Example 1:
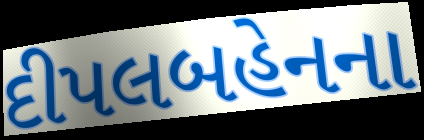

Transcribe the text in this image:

દીપલબહેનના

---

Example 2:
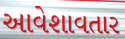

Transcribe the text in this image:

આવેશાવતાર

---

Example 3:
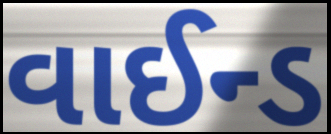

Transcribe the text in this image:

વાઈન્ડ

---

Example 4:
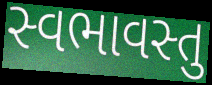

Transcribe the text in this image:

સ્વભાવસ્તુ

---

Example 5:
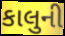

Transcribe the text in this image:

કાલુની